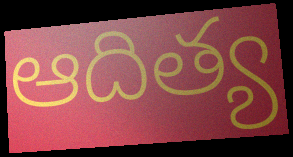
ఆదిత్య